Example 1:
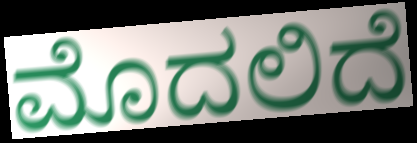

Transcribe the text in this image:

ಮೊದಲಿದೆ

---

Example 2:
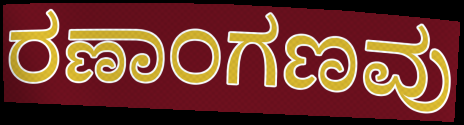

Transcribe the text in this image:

ರಣಾಂಗಣವು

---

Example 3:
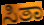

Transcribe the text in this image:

ಸಿತಾ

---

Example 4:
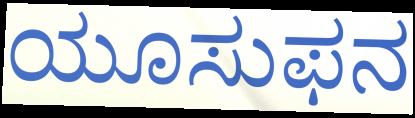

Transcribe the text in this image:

ಯೂಸುಫನ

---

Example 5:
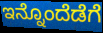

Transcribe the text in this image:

ಇನ್ನೊಂದೆಡೆಗೆ